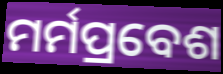
ମର୍ମପ୍ରବେଶ